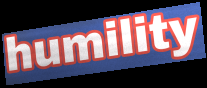
humility